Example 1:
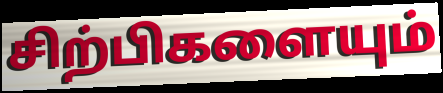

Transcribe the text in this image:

சிற்பிகளையும்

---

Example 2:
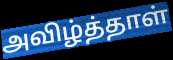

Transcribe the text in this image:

அவிழ்த்தாள்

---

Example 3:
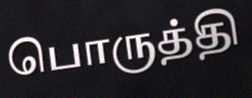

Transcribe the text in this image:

பொருத்தி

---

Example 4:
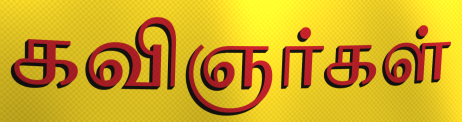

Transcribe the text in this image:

கவிஞர்கள்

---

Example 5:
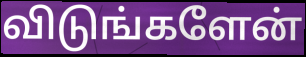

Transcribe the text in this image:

விடுங்களேன்